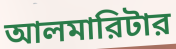
আলমারিটার